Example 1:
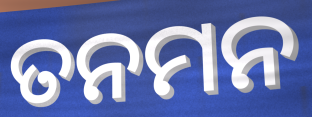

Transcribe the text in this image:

ତନମନ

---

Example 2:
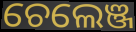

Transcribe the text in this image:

ଚେଲେଞ୍ଜ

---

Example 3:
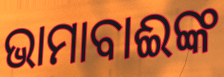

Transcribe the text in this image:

ଭାମାବାଈଙ୍କ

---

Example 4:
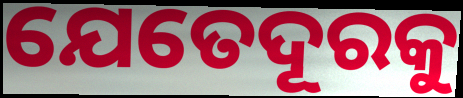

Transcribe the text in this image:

ଯେତେଦୂରକୁ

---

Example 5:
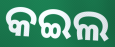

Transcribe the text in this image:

କଇଲ